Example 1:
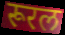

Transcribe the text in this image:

रूरल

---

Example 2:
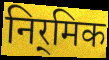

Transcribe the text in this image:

निर्मिक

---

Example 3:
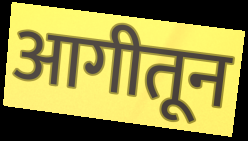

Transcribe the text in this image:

आगीतून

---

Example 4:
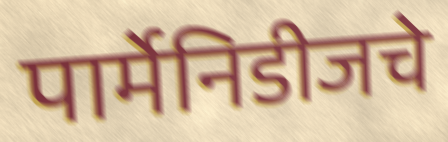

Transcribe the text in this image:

पार्मेनिडीजचे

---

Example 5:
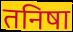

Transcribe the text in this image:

तनिषा